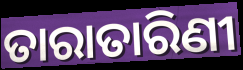
ତାରାତାରିଣୀ